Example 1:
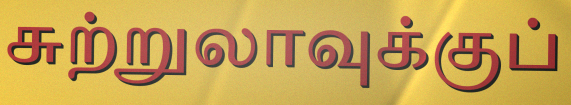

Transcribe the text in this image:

சுற்றுலாவுக்குப்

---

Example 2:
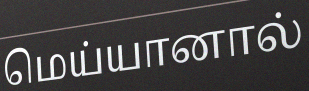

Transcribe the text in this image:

மெய்யானால்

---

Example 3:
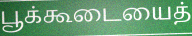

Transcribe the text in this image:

பூக்கூடையைத்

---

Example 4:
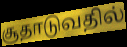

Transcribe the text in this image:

சூதாடுவதில்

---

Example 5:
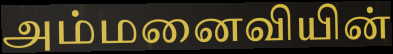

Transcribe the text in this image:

அம்மனைவியின்